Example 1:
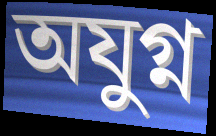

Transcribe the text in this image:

অযুগ্ন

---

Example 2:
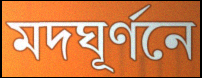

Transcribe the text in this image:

মদঘূর্ণনে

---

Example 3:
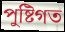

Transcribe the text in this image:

পুষ্টিগত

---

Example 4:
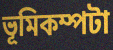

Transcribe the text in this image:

ভূমিকম্পটা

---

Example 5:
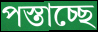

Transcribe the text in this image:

পস্তাচ্ছে